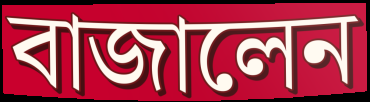
বাজালেন